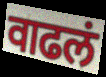
वाढलं